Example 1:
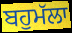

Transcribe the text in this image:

ਬਹੁਮੱਲਾ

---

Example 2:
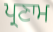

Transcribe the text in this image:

ਪ੍ਰਣਾਮ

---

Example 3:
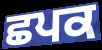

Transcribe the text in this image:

ਛਪਕ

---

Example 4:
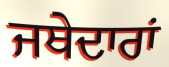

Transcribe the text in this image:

ਜਥੇਦਾਰਾਂ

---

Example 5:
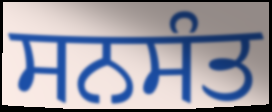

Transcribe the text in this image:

ਸਨਸੰਤ